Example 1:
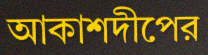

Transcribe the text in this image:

আকাশদীপের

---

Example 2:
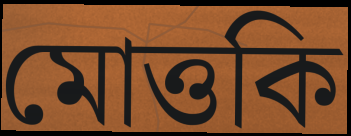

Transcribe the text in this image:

মোত্তকি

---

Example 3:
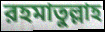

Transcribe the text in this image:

রহমাতুল্লাহ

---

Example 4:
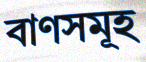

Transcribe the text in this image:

বাণসমূহ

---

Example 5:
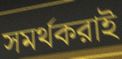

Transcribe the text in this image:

সমর্থকরাই